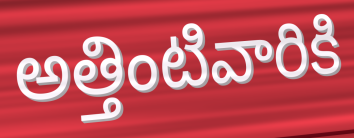
అత్తింటివారికి